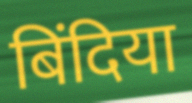
बिंदिया